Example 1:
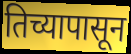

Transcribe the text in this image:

तिच्यापासून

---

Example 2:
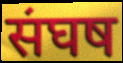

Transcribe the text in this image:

संघष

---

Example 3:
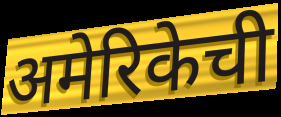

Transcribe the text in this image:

अमेरिकेची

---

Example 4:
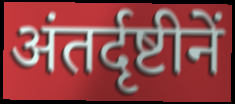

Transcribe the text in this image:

अंतर्दृष्टीनें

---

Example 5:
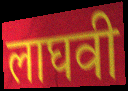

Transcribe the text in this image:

लाघवी